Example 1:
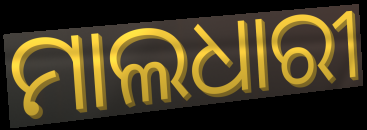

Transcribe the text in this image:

ମାଲଧାରୀ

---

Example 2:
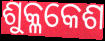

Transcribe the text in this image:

ଶୁକ୍ଳକେଶ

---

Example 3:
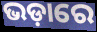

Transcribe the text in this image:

ଭଡ଼ାରେ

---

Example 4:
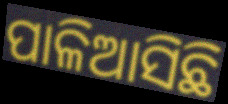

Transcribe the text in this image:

ପାଳିଆସିଛି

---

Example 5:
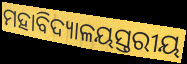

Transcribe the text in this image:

ମହାବିଦ୍ୟାଳୟସ୍ତରୀୟ